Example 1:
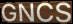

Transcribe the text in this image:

GNCS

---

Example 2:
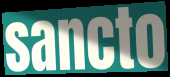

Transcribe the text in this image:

sancto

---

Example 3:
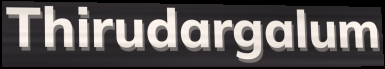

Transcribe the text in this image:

Thirudargalum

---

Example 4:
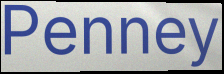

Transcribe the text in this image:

Penney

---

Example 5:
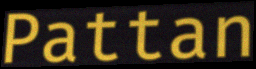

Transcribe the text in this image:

Pattan